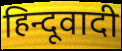
हिन्दूवादी